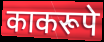
काकरूपे